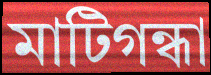
মাটিগন্ধা